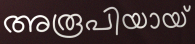
അരൂപിയായ്